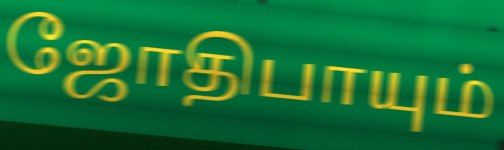
ஜோதிபாயும்